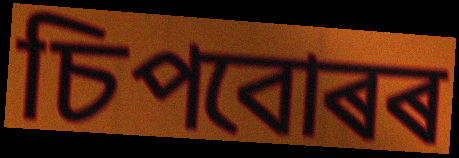
চিপবোৰৰ